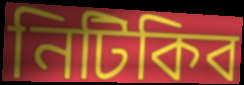
নিটিকিব